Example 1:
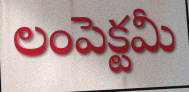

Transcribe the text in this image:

లంపెక్టమీ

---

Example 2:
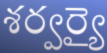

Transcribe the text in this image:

శర్వర్యై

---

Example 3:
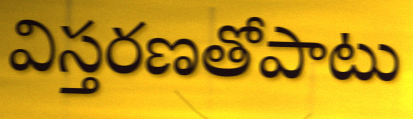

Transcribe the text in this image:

విస్తరణతోపాటు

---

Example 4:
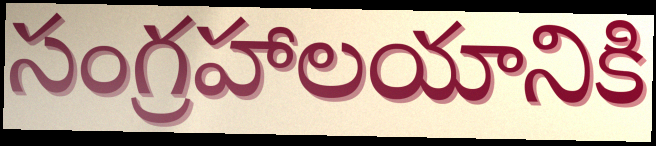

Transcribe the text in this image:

సంగ్రహాలయానికి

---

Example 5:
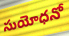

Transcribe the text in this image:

సుయోధనో